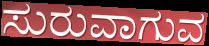
ಸುರುವಾಗುವ